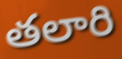
తలారి